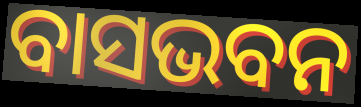
ବାସଭବନ